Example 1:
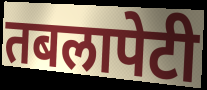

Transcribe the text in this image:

तबलापेटी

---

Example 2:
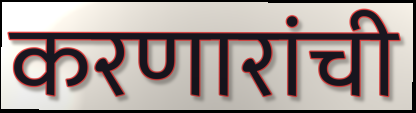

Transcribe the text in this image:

करणारांची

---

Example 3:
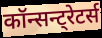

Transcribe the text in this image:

कॉन्सन्ट्रेटर्स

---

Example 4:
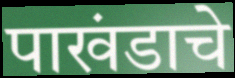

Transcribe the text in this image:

पाखंडाचे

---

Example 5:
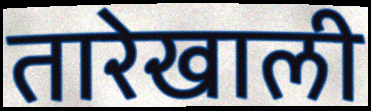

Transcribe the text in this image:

तारेखाली